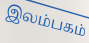
இலம்பகம்